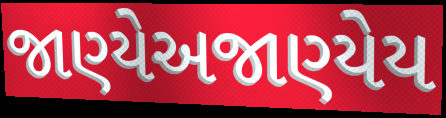
જાણ્યેઅજાણ્યેય